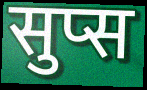
सुप्स